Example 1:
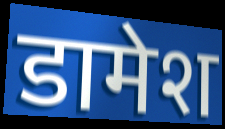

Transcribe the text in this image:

डामेश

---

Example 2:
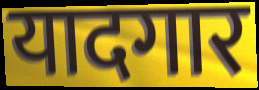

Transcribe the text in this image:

यादगार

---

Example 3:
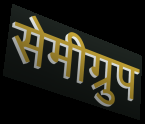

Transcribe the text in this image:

सेमीग्रुप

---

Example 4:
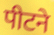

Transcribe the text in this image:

पीटने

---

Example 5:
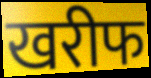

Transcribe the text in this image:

खरीफ